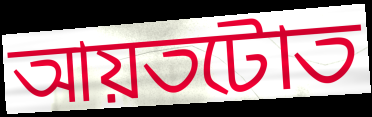
আয়তটোত